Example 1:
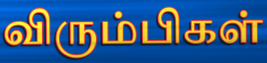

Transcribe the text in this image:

விரும்பிகள்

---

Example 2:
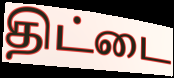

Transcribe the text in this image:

திட்டை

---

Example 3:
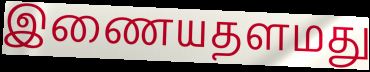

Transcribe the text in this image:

இணையதளமது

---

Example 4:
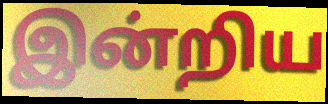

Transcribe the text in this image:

இன்றிய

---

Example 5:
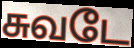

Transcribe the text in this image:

சுவடே